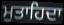
ਮੁਤਾਹਿਦਾ